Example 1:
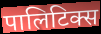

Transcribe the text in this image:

पालिटिक्स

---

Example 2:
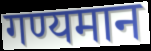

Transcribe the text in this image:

गण्यमान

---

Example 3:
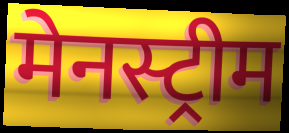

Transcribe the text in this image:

मेनस्‍ट्रीम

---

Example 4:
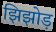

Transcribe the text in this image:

झिझोड़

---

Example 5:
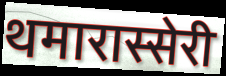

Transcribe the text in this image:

थमारास्सेरी